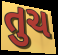
તુચ